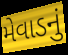
મેવાડનું